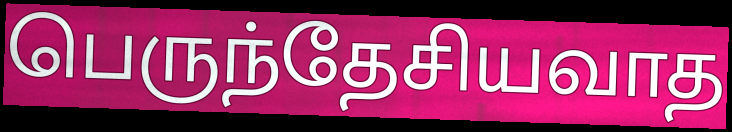
பெருந்தேசியவாத